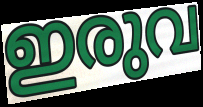
ഇരുവ